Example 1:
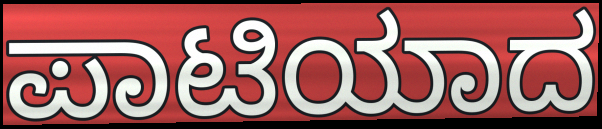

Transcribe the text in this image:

ಪಾಟಿಯಾದ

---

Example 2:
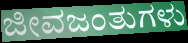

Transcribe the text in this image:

ಜೀವಜಂತುಗಳು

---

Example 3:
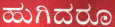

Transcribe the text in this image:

ಹುಗಿದರೂ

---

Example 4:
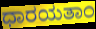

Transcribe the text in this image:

ಧಾರಯತಾಂ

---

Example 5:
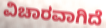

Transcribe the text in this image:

ವಿಚಾರವಾಗಿದೆ